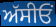
ਅੱਸੀਓਂ